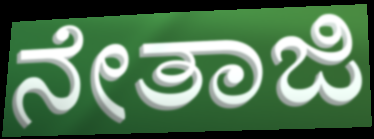
ನೇತಾಜಿ